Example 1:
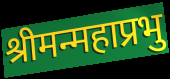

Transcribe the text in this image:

श्रीमन्महाप्रभु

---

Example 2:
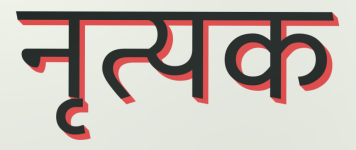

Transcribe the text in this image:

नृत्यक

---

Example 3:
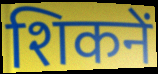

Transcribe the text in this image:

शिकनें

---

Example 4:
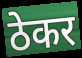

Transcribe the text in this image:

ठेकर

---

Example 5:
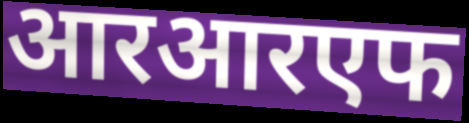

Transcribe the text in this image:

आरआरएफ